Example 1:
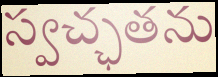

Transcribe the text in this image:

స్వచ్ఛతను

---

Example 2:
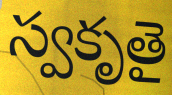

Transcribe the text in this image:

స్వకృతై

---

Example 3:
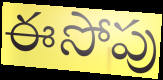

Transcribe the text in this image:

ఈసోపు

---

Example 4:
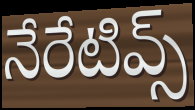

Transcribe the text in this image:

నేరేటివ్స్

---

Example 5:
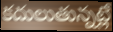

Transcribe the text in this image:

కదులుతున్నట్లే